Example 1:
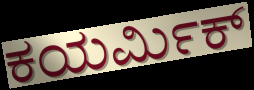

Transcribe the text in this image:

ಕಯರ್ಮಿಕ್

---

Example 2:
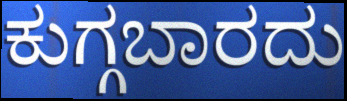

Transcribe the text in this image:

ಕುಗ್ಗಬಾರದು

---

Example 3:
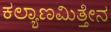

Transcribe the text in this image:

ಕಲ್ಯಾಣಮಿತ್ತೇನ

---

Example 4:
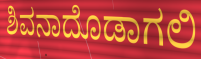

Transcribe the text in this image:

ಶಿವನಾದೊಡಾಗಲಿ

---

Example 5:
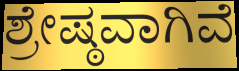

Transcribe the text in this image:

ಶ್ರೇಷ್ಠವಾಗಿವೆ